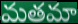
మతమా